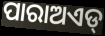
ପାରାଅଏଡ୍